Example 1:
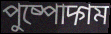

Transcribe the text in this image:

পুষ্পোদ্গম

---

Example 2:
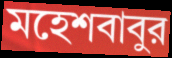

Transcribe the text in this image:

মহেশবাবুর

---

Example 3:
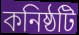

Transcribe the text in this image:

কনিষ্ঠটি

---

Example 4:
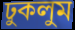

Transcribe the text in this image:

ঢুকলুম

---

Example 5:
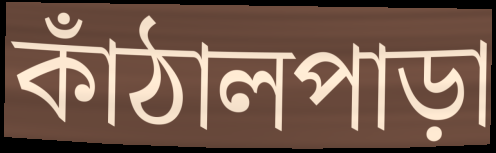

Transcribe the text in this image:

কাঁঠালপাড়া